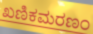
ಖಣಿಕಮರಣಂ